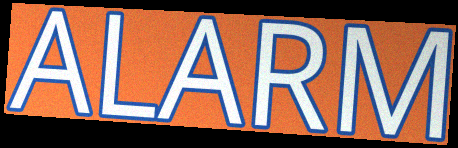
ALARM